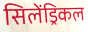
सिलेंड्रिकल